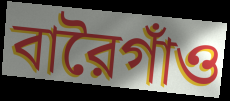
বারৈগাঁও